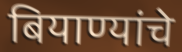
बियाण्यांचे